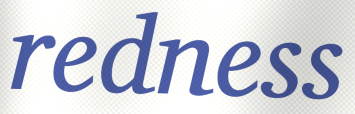
redness